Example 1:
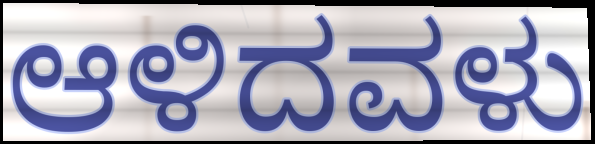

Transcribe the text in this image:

ಆಳಿದವಳು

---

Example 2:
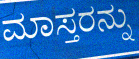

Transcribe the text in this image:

ಮಾಸ್ತರನ್ನು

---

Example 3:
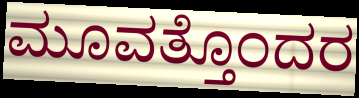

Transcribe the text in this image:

ಮೂವತ್ತೊಂದರ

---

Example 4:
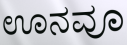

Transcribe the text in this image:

ಊನವೂ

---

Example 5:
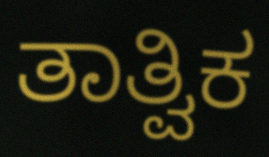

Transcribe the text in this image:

ತಾತ್ವಿಕ